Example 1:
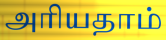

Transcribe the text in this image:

அரியதாம்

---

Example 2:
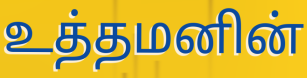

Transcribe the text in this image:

உத்தமனின்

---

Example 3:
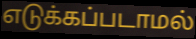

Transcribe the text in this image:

எடுக்கப்படாமல்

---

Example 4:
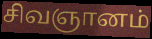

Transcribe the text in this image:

சிவஞானம்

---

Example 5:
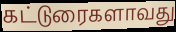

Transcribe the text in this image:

கட்டுரைகளாவது